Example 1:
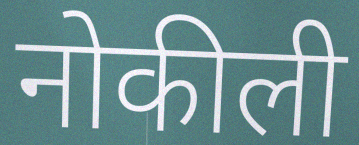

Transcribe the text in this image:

नोकीली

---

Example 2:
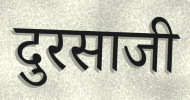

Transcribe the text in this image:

दुरसाजी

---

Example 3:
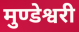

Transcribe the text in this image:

मुण्डेश्वरी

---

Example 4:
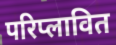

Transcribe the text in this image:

परिप्लावित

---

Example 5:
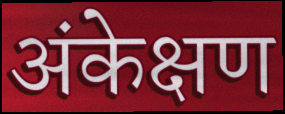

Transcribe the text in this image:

अंकेक्षण